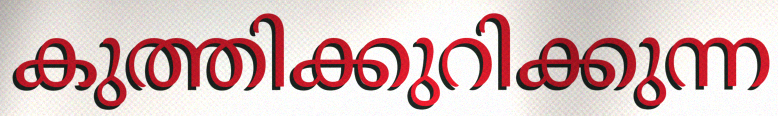
കുത്തിക്കുറിക്കുന്ന